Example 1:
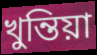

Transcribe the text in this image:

খুন্তিয়া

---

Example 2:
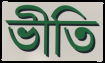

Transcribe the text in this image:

ভীতি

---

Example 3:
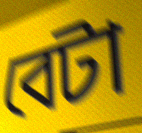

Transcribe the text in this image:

বেটা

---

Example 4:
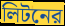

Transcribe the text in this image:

লিটনের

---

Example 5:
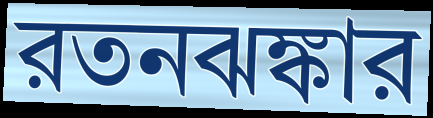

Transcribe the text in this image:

রতনঝঙ্কার